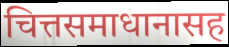
चित्तसमाधानासह